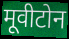
मूवीटोन